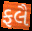
ફલૈ